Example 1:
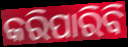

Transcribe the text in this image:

କରିପାରିବି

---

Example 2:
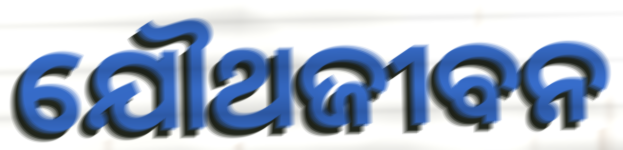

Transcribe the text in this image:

ଯୌଥଜୀବନ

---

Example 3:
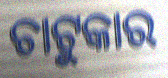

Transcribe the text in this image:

ଚାଟୁକାର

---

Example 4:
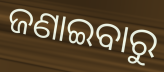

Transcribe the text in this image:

ଜଣାଇବାରୁ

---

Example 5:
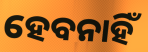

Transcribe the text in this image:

ହେବନାହିଁ